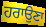
ਹਰਾਉਣਾ